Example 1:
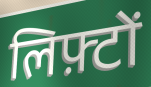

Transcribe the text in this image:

लिफ़्टों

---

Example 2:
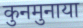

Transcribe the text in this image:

कुनमुनाया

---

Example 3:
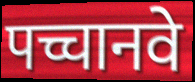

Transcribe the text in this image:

पच्चानवे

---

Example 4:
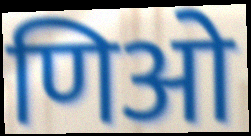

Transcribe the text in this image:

णिओ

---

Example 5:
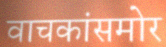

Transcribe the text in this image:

वाचकांसमोर